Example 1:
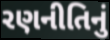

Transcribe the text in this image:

રણનીતિનું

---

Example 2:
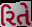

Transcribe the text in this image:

રિતે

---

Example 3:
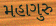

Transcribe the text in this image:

મહાગુરુ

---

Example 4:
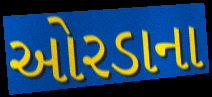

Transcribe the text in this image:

ઓરડાના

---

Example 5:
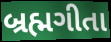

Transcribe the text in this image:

બ્રહ્મગીતા